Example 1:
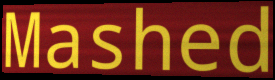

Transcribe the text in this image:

Mashed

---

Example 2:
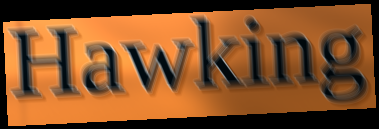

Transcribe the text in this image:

Hawking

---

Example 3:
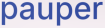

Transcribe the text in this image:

pauper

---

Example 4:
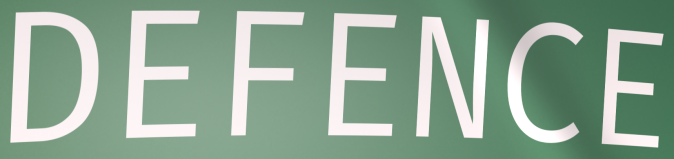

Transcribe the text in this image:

DEFENCE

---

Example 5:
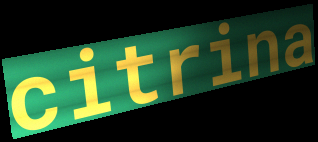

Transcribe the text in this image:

citrina